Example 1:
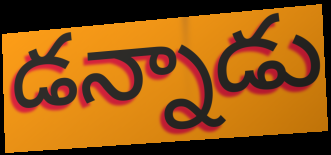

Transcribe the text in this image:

డన్నాడు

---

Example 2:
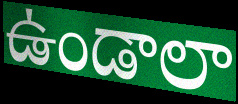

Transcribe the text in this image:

ఉండాలా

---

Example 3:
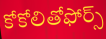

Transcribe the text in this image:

కోకోలితోఫోర్స్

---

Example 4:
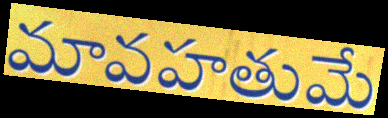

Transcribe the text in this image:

మావహతుమే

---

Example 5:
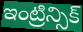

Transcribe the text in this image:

ఇంట్రిన్సిక్